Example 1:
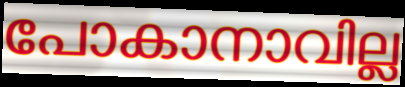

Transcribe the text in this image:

പോകാനാവില്ല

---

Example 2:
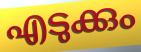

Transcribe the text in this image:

എടുക്കും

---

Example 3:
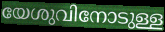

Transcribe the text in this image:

യേശുവിനോടുള്ള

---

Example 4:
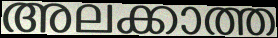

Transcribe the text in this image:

അലക്കാത്ത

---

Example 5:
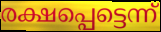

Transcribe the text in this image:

രക്ഷപ്പെട്ടെന്ന്